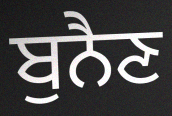
ਬੁਨੈਣ